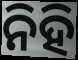
ନିହି